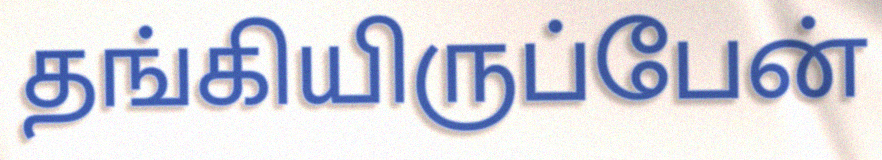
தங்கியிருப்பேன்